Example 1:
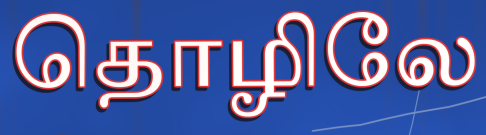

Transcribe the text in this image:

தொழிலே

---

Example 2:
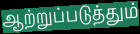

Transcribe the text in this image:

ஆற்றுப்படுத்தும்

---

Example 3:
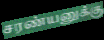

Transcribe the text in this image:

சரண்யனுக்கு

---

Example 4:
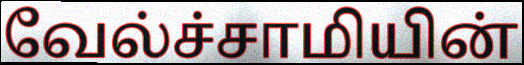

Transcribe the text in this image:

வேல்ச்சாமியின்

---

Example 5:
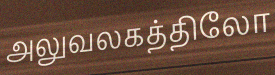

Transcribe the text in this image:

அலுவலகத்திலோ